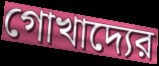
গোখাদ্যের